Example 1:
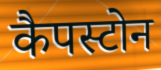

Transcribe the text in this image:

कैपस्टोन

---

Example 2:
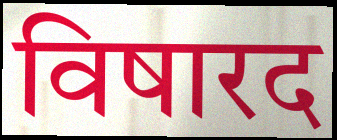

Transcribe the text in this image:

विषारद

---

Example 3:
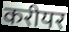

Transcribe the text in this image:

करीयर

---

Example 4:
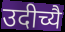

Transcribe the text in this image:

उदीच्यै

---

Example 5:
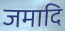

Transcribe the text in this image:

जमादि